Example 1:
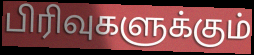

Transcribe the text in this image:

பிரிவுகளுக்கும்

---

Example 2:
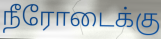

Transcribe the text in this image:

நீரோடைக்கு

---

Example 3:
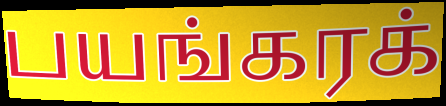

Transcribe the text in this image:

பயங்கரக்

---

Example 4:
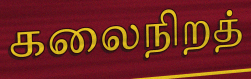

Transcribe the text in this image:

கலைநிறத்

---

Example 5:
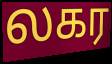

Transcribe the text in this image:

லகர